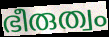
ഭീരുത്വം